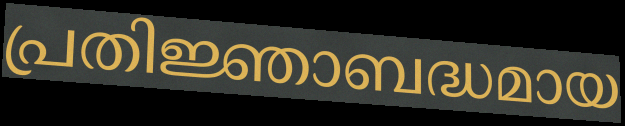
പ്രതിജ്ഞാബദ്ധമായ